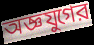
অজ্ঞযুগের